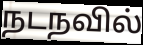
நடநவில்